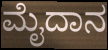
ಮೈದಾನ